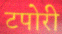
टपोरी